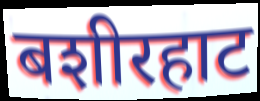
बशीरहाट